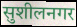
सुशीलनगर